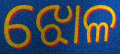
ଝୋଳ